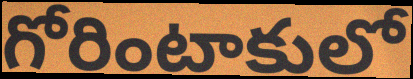
గోరింటాకులో